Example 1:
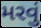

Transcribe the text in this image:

મરવું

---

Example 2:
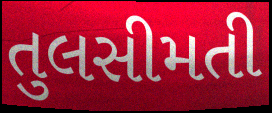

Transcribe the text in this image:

તુલસીમતી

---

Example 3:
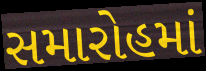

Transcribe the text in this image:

સમારોહમાં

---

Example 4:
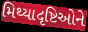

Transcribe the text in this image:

મિથ્યાદૃષ્ટિઓને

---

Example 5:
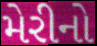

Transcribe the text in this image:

મેરીનો